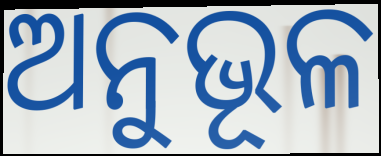
ଅନୁଭୂଳ